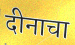
दीनाचा